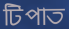
টিপাত